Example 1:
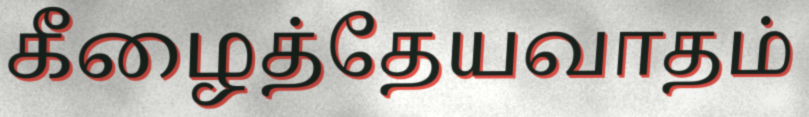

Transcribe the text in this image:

கீழைத்தேயவாதம்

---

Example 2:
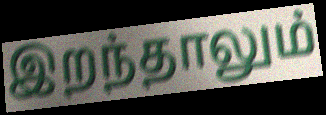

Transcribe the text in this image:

இறந்தாலும்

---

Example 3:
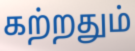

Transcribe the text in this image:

கற்றதும்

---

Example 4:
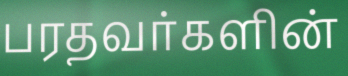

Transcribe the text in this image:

பரதவர்களின்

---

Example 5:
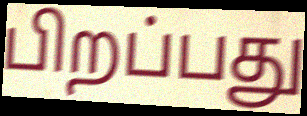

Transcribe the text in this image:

பிறப்பது